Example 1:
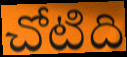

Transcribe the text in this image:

చోటిది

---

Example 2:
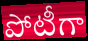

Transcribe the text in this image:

పోటీగా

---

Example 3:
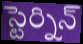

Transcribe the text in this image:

స్టెర్నిన్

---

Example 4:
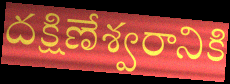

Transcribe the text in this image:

దక్షిణేశ్వరానికి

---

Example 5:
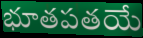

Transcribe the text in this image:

భూతపతయే